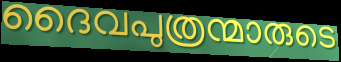
ദൈവപുത്രന്മാരുടെ